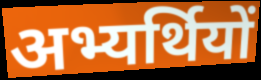
अभ्यर्थियों